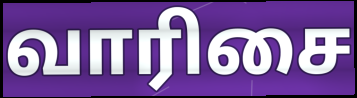
வாரிசை